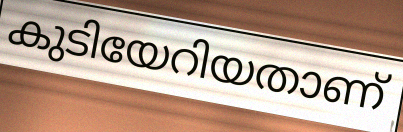
കുടിയേറിയതാണ്